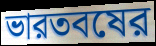
ভারতবষের